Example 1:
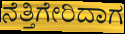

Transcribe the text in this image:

ನೆತ್ತಿಗೇರಿದಾಗ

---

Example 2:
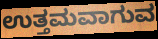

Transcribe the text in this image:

ಉತ್ತಮವಾಗುವ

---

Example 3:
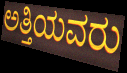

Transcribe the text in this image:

ಅತ್ತಿಯವರು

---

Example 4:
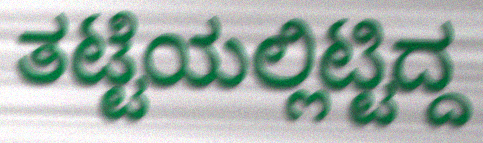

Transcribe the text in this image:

ತಟ್ಟೆಯಲ್ಲಿಟ್ಟಿದ್ದ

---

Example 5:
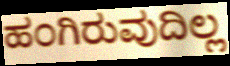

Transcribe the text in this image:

ಹಂಗಿರುವುದಿಲ್ಲ